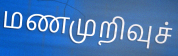
மணமுறிவுச்